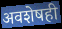
अवशेषही